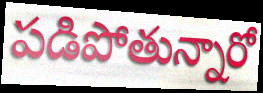
పడిపోతున్నారో